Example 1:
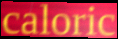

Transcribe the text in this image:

caloric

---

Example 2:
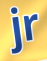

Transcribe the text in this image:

jr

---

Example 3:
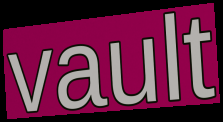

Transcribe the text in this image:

vault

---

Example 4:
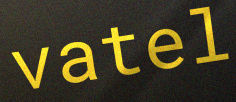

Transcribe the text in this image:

vatel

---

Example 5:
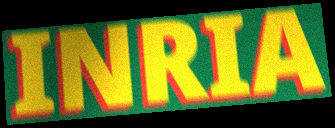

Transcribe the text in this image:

INRIA